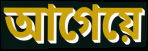
আগেয়ে